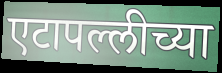
एटापल्लीच्या